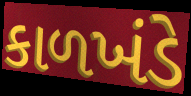
કાળખંડે